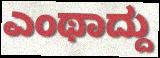
ಎಂಥಾದ್ದು